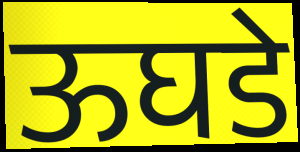
ऊघडे